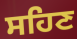
ਸਹਿਣ